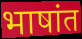
भाषांत